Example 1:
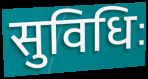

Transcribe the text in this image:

सुविधिः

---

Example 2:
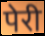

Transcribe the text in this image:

पेरी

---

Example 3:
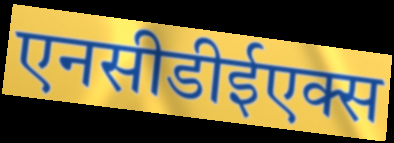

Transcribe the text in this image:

एनसीडीईएक्स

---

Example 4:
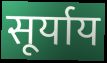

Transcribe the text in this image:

सूर्याय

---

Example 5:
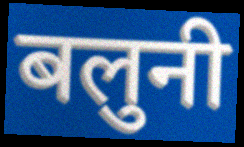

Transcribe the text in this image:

बलुनी